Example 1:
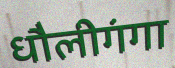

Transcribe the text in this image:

धौलीगंगा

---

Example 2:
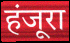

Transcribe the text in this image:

हंजूरा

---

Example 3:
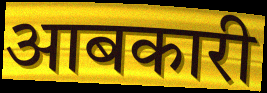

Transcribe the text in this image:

आबकारी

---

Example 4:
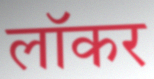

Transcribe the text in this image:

लॉकर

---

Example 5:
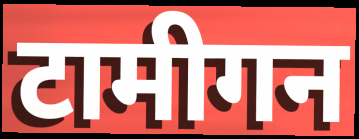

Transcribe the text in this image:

टामीगन